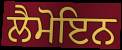
ਲੈਮੋਇਨ